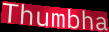
Thumbha